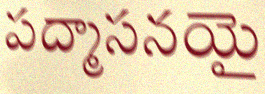
పద్మాసనయై